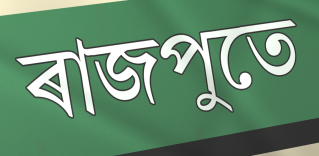
ৰাজপুতে